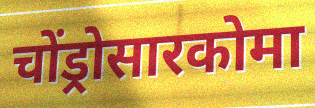
चोंड्रोसारकोमा